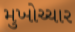
મુખોચ્ચાર